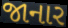
જાનાર